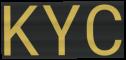
KYC